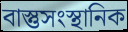
বাস্তুসংস্থানিক